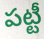
పట్టీ